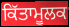
ਕਿੱਤਾਮੂਲਕ